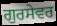
ਗੁਰਸੇਵਰ